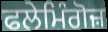
ਫਲੇਮਿੰਗੋਜ਼